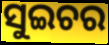
ସୁଇଚର